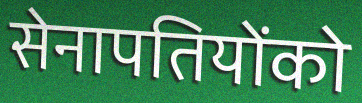
सेनापतियोंको